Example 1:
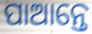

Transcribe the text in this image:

ପାଆନ୍ତେ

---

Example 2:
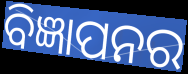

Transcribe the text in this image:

ବିଜ୍ଞାପନର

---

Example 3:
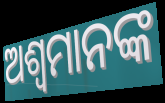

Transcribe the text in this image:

ଅଶ୍ୱମାନଙ୍କ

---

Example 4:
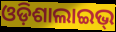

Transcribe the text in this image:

ଓଡ଼ିଶାଲାଇଭ୍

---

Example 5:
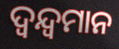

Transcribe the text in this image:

ଦ୍ଵନ୍ଦ୍ଵମାନ